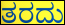
ತರದು